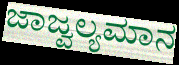
ಜಾಜ್ವಲ್ಯಮಾನ